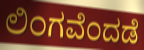
ಲಿಂಗವೆಂದಡೆ